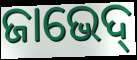
ଜାଭେଦ୍